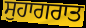
ਸੁਹਾਗਰਾਤ